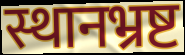
स्थानभ्रष्ट